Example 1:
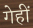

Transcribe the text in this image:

गेहीं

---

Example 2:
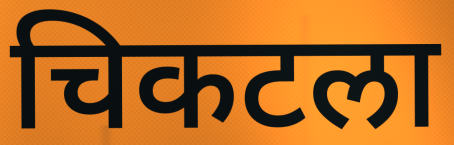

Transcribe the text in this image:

चिकटला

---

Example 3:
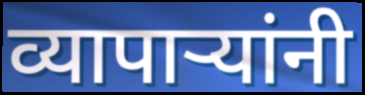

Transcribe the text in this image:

व्यापाऱ्यांनी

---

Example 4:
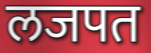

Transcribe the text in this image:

लजपत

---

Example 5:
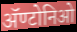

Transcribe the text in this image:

ॲण्टोनिओ